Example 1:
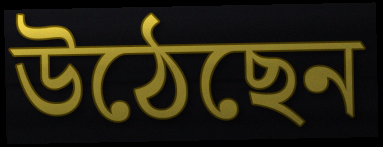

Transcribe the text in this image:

উঠেছেন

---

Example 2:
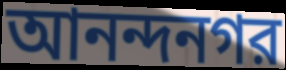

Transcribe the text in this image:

আনন্দনগর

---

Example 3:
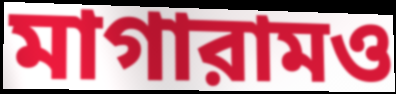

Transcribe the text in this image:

মাগারামও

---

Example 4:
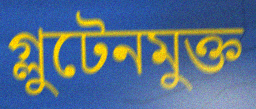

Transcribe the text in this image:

গ্লুটেনমুক্ত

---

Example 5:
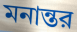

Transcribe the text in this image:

মনান্তর